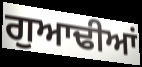
ਗੁਆਢੀਆਂ